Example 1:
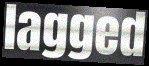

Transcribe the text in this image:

lagged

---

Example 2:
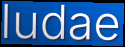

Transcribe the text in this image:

Iudae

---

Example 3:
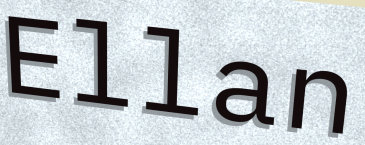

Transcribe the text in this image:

Ellan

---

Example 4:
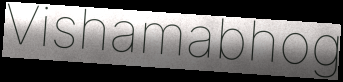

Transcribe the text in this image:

Vishamabhog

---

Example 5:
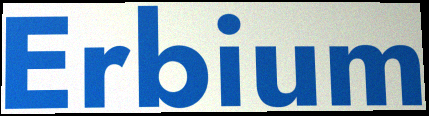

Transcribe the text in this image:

Erbium